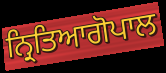
ਨ੍ਰਿਤਿਆਗੋਪਾਲ